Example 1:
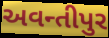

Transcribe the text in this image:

અવન્તીપુર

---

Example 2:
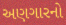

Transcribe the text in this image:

અણગારનો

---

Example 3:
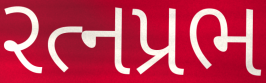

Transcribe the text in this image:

રત્નપ્રભ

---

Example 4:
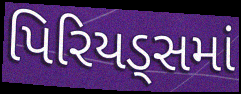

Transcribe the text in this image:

પિરિયડ્સમાં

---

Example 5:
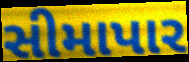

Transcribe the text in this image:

સીમાપાર